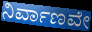
ನಿರ್ವಾಣವೇ